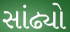
સાંઢ્યો